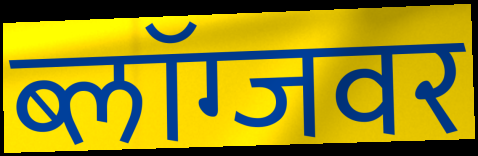
ब्लॉग्जवर